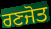
ਰਣਜੋਤ